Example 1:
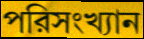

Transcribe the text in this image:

পরিসংখ্যান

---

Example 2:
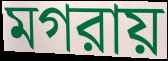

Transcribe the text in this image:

মগরায়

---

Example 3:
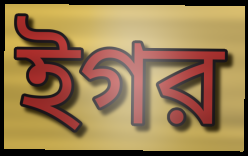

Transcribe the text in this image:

ইগর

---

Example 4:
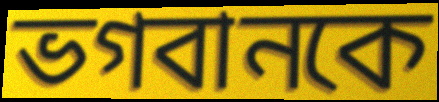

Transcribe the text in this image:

ভগবানকে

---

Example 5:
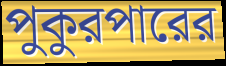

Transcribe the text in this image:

পুকুরপারের